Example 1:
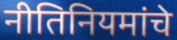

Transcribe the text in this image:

नीतिनियमांचे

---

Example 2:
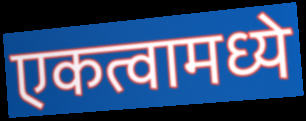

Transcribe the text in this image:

एकत्वामध्ये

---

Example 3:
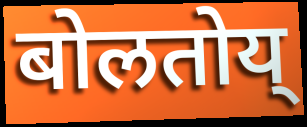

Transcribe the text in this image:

बोलतोय्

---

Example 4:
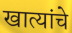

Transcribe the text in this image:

खात्यांचे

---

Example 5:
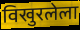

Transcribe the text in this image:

विखुरलेला